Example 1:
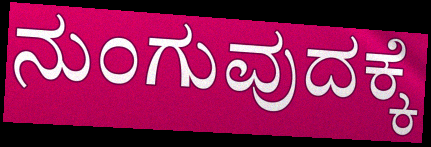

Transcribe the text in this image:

ನುಂಗುವುದಕ್ಕೆ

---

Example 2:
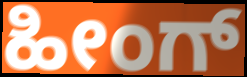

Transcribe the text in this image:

ಹೀಂಗ್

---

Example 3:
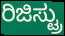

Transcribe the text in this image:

ರಿಜಿಸ್ಟ್ರು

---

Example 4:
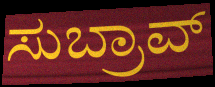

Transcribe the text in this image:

ಸುಬ್ರಾವ್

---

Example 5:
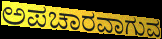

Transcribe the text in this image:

ಅಪಚಾರವಾಗುವ